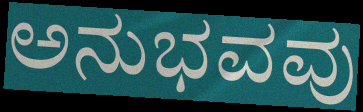
ಅನುಭವವು